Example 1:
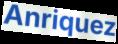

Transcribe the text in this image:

Anriquez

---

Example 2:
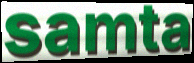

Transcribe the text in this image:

samta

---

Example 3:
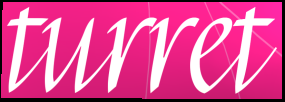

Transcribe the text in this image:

turret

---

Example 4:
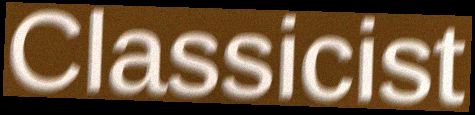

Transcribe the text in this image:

Classicist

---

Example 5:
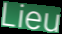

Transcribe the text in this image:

Lieu